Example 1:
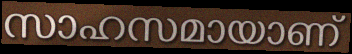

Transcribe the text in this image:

സാഹസമായാണ്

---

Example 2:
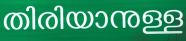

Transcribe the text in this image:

തിരിയാനുള്ള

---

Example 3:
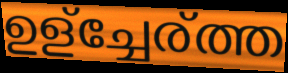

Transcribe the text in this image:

ഉള്ച്ചേര്ത്ത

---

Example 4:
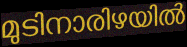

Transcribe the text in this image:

മുടിനാരിഴയിൽ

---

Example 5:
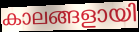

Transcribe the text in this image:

കാലങ്ങളായി